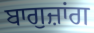
ਬਾਗੁਜ਼ਾਂਗ